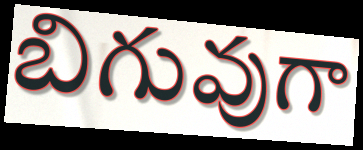
బిగువుగా